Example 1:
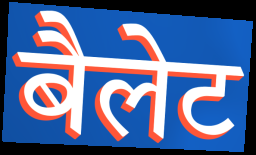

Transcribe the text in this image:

बैलेट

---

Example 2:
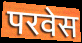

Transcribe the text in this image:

परवेस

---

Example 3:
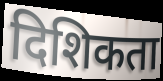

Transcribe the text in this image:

दिशिकता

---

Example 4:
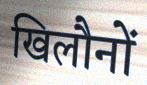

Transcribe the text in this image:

खिलौनों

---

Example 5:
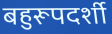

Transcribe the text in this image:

बहुरूपदर्शी